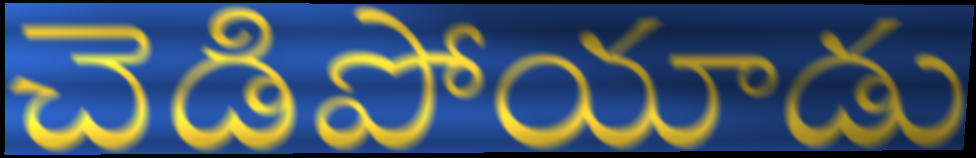
చెడిపోయాడు